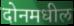
दोनमधील